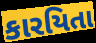
કારયિતા